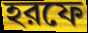
হরফে